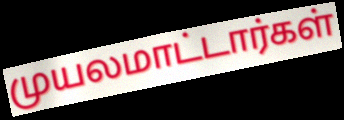
முயலமாட்டார்கள்